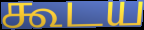
கூடய